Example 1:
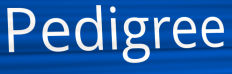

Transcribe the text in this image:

Pedigree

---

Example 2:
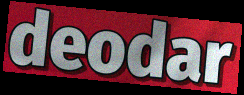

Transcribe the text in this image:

deodar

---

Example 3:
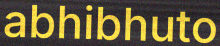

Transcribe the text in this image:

abhibhuto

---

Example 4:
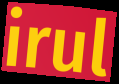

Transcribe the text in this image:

irul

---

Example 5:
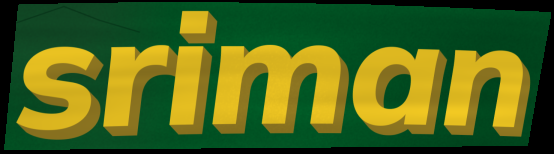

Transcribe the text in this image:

sriman